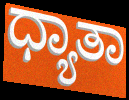
ಧ್ಯಾತಾ